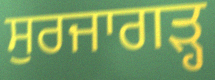
ਸੁਰਜਾਗੜ੍ਹ